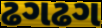
ઢગઢગ